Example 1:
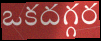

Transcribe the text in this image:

ఒకదగ్గర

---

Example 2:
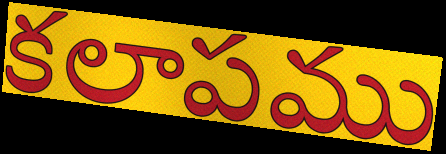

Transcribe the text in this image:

కలాపము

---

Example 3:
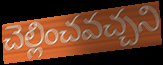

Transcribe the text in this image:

చెల్లించవచ్చని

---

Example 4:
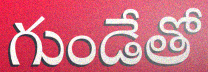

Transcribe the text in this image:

గుండేతో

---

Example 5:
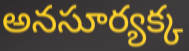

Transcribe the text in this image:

అనసూర్యక్క